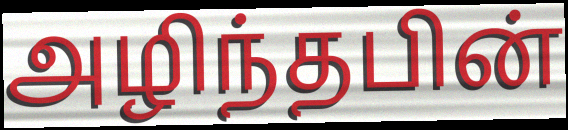
அழிந்தபின்